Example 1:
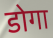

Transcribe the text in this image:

डोगा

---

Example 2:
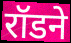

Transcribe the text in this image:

रॉडने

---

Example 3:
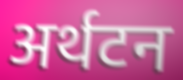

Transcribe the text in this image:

अर्थटन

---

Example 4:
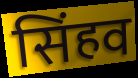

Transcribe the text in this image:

सिंहव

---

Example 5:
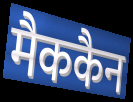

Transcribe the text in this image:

मैककैन